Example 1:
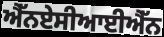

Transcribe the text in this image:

ਐੱਨਏਸੀਆਈਐੱਨ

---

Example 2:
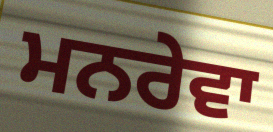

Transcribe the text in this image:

ਮਨਰੇਵਾ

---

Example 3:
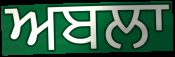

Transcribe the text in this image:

ਅਬਲਾ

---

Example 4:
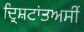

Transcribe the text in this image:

ਦ੍ਰਿਸ਼ਟਾਂਤਅਸੀਂ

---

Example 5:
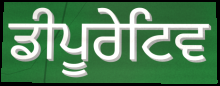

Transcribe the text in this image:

ਡੀਪੂਰੇਟਿਵ